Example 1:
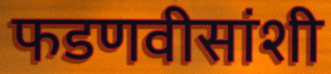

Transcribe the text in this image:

फडणवीसांशी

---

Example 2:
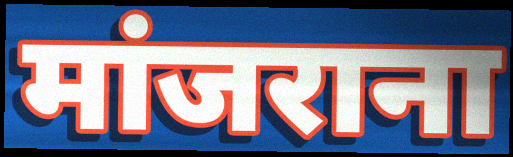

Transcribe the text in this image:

मांजराना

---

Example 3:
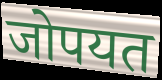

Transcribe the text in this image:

जोपयत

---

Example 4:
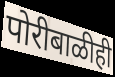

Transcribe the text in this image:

पोरीबाळीही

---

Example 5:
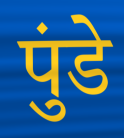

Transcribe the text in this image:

पुंडे